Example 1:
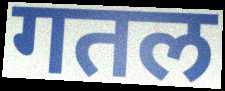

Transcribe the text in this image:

गतल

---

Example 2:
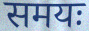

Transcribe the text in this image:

समयः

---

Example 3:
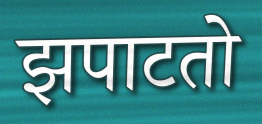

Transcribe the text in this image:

झपाटतो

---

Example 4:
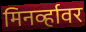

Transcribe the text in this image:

मिनर्व्हावर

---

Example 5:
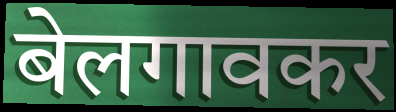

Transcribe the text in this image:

बेलगावकर